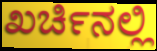
ಖರ್ಚಿನಲ್ಲಿ